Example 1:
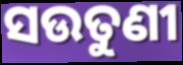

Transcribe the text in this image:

ସଉତୁଣୀ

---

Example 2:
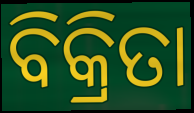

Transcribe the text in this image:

ବିକ୍ରିତା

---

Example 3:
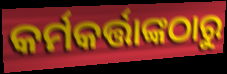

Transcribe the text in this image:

କର୍ମକର୍ତ୍ତାଙ୍କଠାରୁ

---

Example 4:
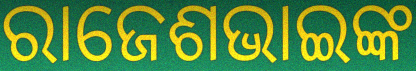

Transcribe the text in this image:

ରାଜେଶଭାଇଙ୍କ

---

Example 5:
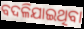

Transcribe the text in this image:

ବଦଳିଯାଇଥିବା